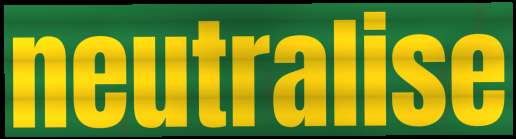
neutralise